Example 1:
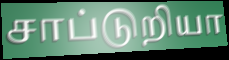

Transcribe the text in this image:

சாப்டுறியா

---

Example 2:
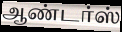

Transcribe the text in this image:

ஆண்டர்ஸ்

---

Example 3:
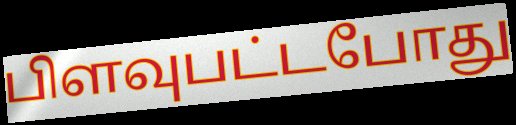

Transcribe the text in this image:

பிளவுபட்டபோது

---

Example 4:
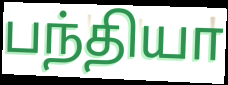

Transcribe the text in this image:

பந்தியா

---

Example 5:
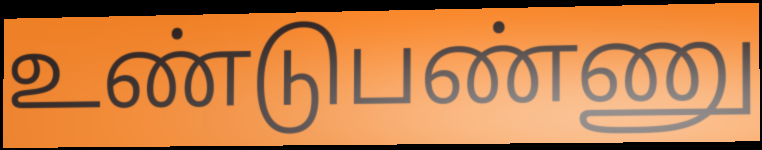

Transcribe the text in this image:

உண்டுபண்ணு